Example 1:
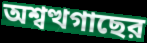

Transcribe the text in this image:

অশ্বত্থগাছের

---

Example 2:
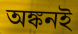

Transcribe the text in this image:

অঙ্কনই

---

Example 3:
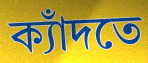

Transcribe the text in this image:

ক্যাঁদতে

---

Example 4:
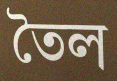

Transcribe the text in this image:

তৈল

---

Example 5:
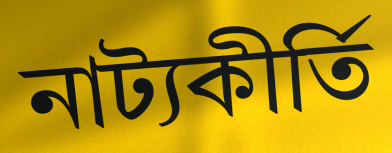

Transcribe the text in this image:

নাট্যকীর্তি